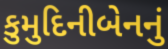
કુમુદિનીબેનનું